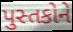
પુસ્તકોને